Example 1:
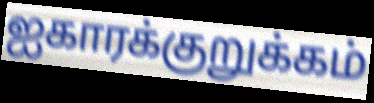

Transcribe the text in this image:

ஐகாரக்குறுக்கம்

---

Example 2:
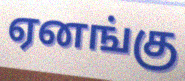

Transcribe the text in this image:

ஏனங்கு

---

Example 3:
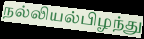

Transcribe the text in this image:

நல்லியல்பிழந்து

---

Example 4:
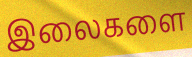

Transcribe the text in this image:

இலைகளை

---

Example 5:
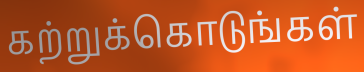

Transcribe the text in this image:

கற்றுக்கொடுங்கள்